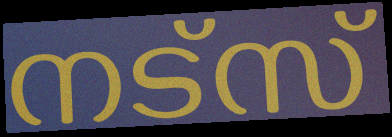
നട്സ്